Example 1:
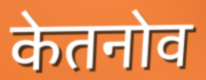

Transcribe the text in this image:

केतनोव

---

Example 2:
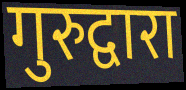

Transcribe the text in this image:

गुरुद्वारा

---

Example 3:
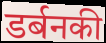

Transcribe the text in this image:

डर्बनकी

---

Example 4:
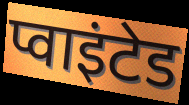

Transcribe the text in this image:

प्वाइंटेड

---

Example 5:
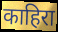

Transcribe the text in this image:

काहिरा